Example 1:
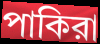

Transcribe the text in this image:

পাকিরা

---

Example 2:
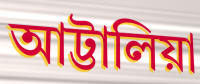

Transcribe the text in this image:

আট্টালিয়া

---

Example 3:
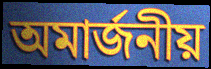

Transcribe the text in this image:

অমার্জনীয়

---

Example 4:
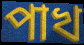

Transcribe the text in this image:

পাখ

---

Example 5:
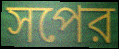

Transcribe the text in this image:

সপের